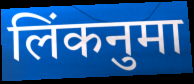
लिंकनुमा